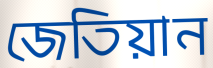
জেতিয়ান